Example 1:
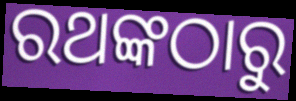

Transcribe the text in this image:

ରଥଙ୍କଠାରୁ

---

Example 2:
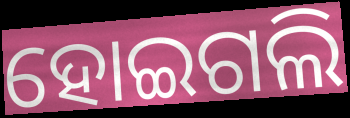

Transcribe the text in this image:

ହୋଇଗଲି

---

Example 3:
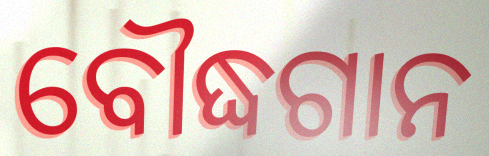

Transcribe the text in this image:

ବୌଦ୍ଧଗାନ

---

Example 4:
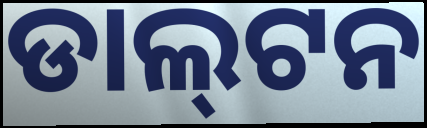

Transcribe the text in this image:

ଡାଲ୍‌ଟନ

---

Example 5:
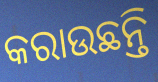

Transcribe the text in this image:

କରାଉଛନ୍ତି